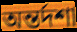
অন্তর্দশা